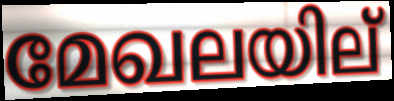
മേഖലയില്